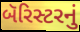
બૅરિસ્ટરનું